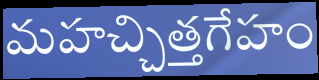
మహచ్చిత్తగేహం